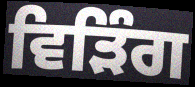
ਵਿੜਿੰਗ